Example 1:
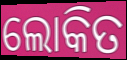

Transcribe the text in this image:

ଲୋକିତ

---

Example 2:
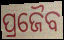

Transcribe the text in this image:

ପ୍ରଜୈବ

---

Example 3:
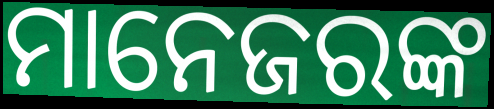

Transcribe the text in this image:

ମାନେଜରଙ୍କ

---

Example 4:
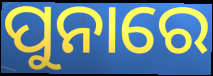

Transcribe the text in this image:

ପୁନାରେ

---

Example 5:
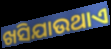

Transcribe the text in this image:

ଖସିଯାଉଥାଏ